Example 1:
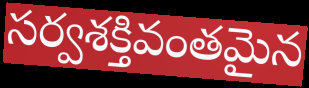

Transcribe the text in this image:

సర్వశక్తివంతమైన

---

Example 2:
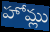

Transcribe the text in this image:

హోమ్లు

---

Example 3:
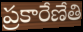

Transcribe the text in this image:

ప్రకారేణేతి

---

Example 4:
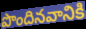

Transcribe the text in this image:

పొందినవానికి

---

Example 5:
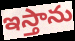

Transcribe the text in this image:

ఇస్తాను